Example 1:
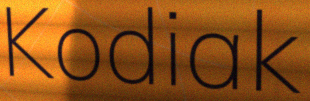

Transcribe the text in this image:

Kodiak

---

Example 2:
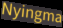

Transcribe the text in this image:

Nyingma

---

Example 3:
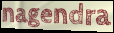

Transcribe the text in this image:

nagendra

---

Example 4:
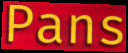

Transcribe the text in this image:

Pans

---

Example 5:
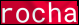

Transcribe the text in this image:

rocha